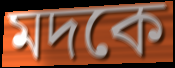
মদকে